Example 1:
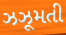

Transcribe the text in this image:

ઝઝૂમતી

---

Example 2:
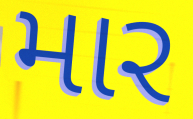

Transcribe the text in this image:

માર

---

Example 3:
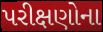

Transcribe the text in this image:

પરીક્ષણોના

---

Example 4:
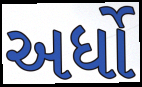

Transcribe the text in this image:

અર્ધો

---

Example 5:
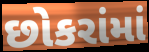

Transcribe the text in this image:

છોકરાંમાં